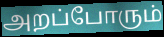
அறப்போரும்